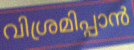
വിശ്രമിപ്പാൻ